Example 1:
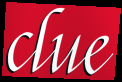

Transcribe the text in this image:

clue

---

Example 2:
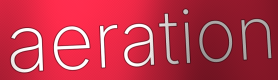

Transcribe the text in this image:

aeration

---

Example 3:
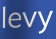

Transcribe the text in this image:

levy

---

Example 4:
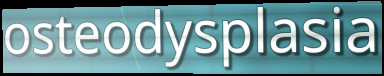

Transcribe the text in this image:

osteodysplasia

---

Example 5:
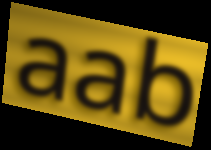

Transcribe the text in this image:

aab